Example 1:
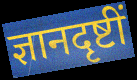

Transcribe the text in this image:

ज्ञानदृष्टीं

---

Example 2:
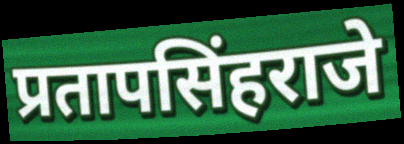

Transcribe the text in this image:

प्रतापसिंहराजे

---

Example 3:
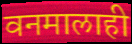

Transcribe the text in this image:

वनमालाही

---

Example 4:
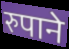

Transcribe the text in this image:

रुपाने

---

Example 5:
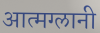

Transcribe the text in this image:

आत्मग्लानी